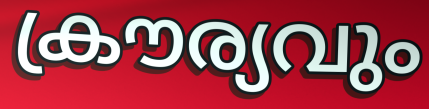
ക്രൗര്യവും